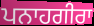
ਪਨਾਹਗੀਰਾ